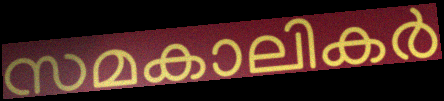
സമകാലികർ